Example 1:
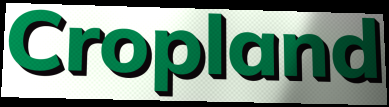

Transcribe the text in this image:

Cropland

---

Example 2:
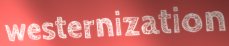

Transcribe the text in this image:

westernization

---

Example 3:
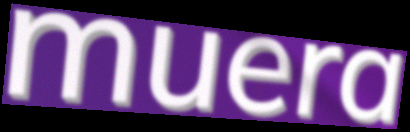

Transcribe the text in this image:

muera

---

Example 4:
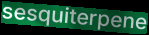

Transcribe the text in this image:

sesquiterpene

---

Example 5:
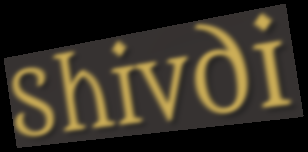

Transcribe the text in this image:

Shivdi